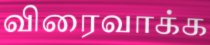
விரைவாக்க